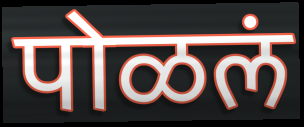
पोळलं